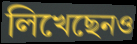
লিখেছেনও